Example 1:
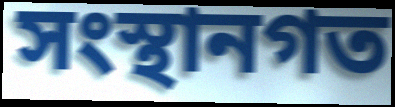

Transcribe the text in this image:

সংস্থানগত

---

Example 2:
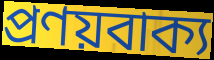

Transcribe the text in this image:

প্রণয়বাক্য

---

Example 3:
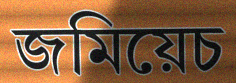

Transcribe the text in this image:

জমিয়েচ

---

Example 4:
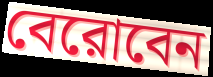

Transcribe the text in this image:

বেরোবেন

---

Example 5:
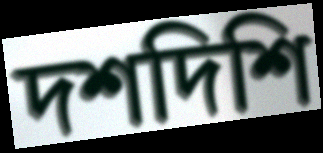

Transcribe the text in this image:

দশদিশি